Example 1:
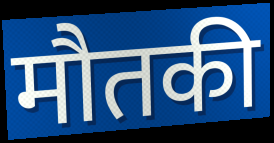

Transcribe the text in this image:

मौतकी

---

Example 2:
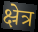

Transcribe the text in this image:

क्ष्रेत्र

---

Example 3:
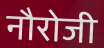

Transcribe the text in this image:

नौरोजी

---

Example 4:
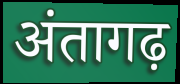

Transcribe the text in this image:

अंतागढ़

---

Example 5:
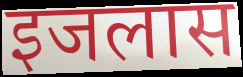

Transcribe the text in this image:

इजलास